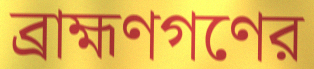
ব্রাহ্মণগণের